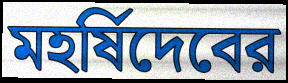
মহর্ষিদেবের